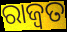
ରାଜ୍ୱତ